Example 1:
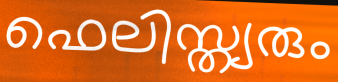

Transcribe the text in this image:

ഫെലിസ്ത്യരും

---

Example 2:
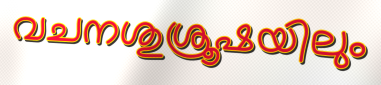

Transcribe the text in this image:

വചനശുശ്രൂഷയിലും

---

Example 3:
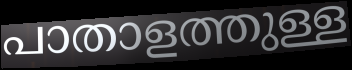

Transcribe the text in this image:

പാതാളത്തുള്ള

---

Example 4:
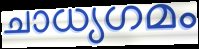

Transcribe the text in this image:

ചാധ്യഗമം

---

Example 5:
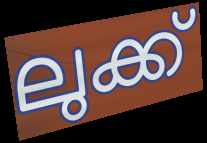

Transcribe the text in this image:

ലുക്ക്